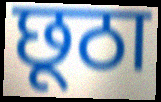
छूठा